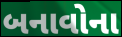
બનાવોના